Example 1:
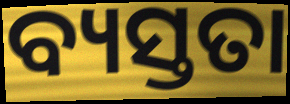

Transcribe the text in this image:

ବ୍ୟସ୍ତତା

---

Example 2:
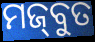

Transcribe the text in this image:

ମଜ୍‌ବୁତ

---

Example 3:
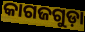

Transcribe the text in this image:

କାଗଜଗୁଡ଼ା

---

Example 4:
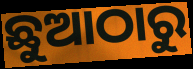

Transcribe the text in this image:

ଛୁଆଠାରୁ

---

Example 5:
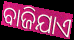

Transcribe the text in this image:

ବାଜିଯାଏ